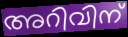
അറിവിന്